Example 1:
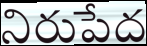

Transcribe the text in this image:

నిరుపేద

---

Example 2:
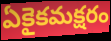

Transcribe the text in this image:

ఏకైకమక్షరం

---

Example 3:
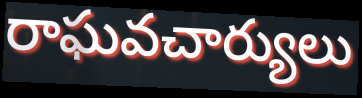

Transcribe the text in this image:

రాఘవచార్యులు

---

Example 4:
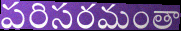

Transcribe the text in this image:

పరిసరమంతా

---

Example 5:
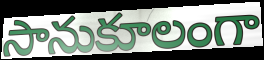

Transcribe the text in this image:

సానుకూలంగా